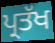
ਪ੍ਰਤੱਖ